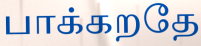
பாக்கறதே